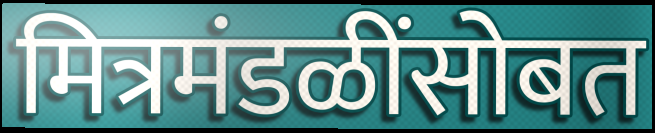
मित्रमंडळींसोबत